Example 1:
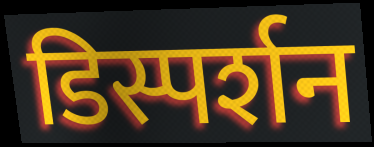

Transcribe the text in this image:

डिस्पर्शन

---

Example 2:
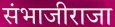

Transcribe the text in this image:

संभाजीराजा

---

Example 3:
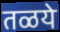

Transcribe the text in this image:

तळये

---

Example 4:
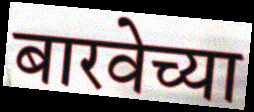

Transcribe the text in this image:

बारवेच्या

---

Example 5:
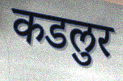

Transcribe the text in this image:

कडलुर